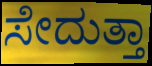
ಸೇದುತ್ತಾ